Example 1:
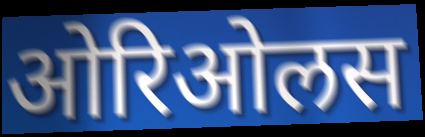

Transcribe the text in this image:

ओरिओलस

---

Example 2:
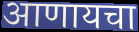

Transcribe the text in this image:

आणायचा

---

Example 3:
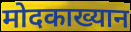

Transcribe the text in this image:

मोदकाख्यान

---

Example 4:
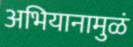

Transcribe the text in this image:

अभियानामुळं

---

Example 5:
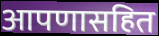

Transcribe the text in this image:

आपणासहित